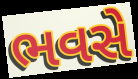
ભવસે